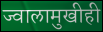
ज्वालामुखीही